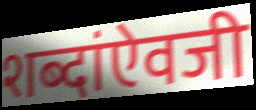
शब्दांऐवजी